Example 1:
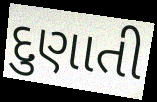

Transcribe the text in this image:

દુણાતી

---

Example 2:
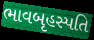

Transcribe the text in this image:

ભાવબૃહસ્પતિ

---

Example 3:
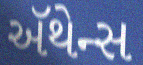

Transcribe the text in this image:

ઍથેન્સ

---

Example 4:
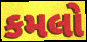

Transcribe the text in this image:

કમલો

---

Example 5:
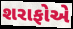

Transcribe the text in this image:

શરાફોએ